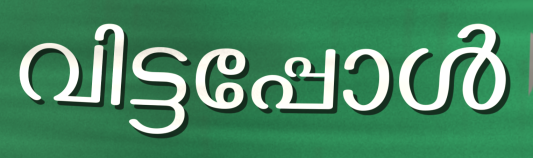
വിട്ടപ്പോൾ